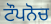
ਟੌਪਨੋਚ